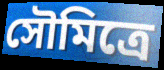
সৌমিত্রে